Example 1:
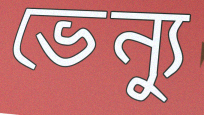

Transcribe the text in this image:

ভেন্যু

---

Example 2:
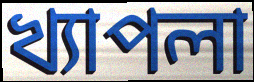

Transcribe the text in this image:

খ্যাপলা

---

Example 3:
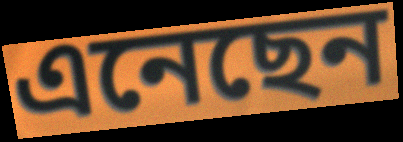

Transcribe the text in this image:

এনেছেন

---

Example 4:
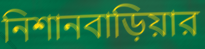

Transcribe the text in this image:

নিশানবাড়িয়ার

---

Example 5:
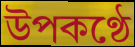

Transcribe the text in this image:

উপকণ্ঠে